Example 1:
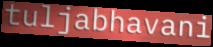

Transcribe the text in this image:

tuljabhavani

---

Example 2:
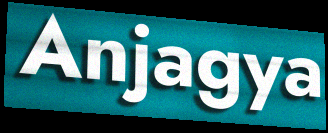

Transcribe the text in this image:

Anjagya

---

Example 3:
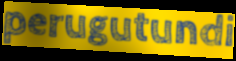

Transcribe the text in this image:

perugutundi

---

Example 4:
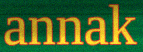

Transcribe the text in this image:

annak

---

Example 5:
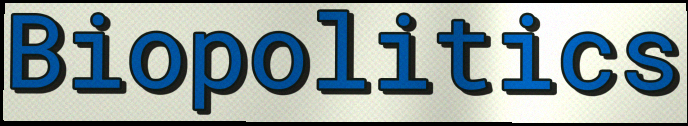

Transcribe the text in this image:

Biopolitics